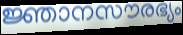
ജ്ഞാനസൗരഭ്യം